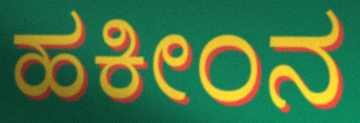
ಹಕೀಂನ